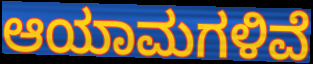
ಆಯಾಮಗಳಿವೆ